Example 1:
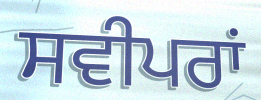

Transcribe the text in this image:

ਸਵੀਪਰਾਂ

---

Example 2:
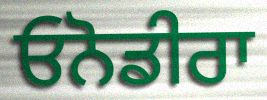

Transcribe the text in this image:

ਓਨੋਡੀਰਾ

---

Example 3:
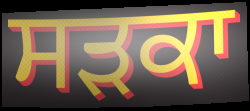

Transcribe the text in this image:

ਸੜਕਾ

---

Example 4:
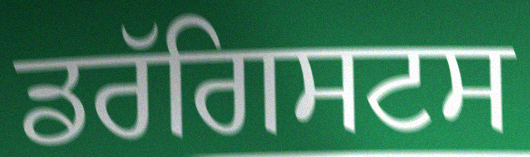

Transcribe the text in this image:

ਡਰੱਗਿਸਟਸ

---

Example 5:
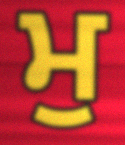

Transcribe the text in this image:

ਮੁ